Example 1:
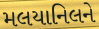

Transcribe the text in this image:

મલયાનિલને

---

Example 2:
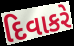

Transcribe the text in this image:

દિવાકરે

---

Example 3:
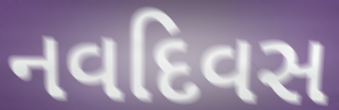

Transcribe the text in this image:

નવદિવસ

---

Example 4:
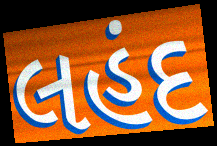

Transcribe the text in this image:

લહંદ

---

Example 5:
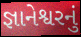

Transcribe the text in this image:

જ્ઞાનેશ્વરનું